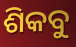
ଶିକବୁ